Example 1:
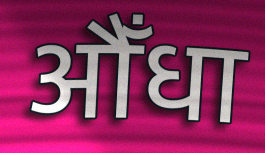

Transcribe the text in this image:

औँधा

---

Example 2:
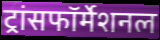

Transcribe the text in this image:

ट्रांसफॉर्मेशनल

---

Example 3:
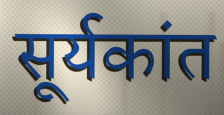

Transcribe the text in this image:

सूर्यकांत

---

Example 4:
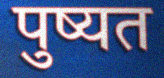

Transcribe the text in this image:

पुष्यत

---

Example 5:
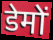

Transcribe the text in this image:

डेमों